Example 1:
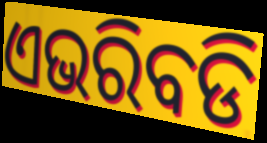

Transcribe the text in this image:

ଏଭରିବଡି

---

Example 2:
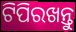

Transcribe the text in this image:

ଟିପିରଖନ୍ତୁ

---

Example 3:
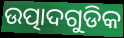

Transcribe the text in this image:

ଉତ୍ପାଦଗୁଡିକ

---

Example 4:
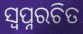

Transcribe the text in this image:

ସ୍ୱପ୍ନରଚିତ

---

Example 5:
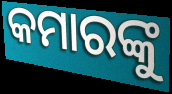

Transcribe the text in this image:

କମାରଙ୍କୁ